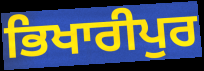
ਭਿਖਾਰੀਪੁਰ